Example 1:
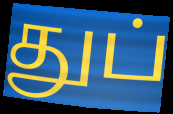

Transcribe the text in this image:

துப்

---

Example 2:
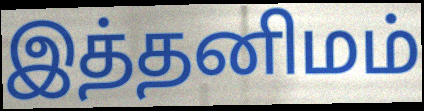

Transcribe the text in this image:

இத்தனிமம்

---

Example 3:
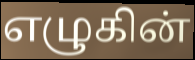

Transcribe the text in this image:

எழுகின்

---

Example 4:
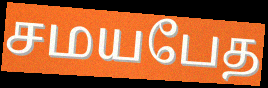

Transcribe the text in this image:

சமயபேத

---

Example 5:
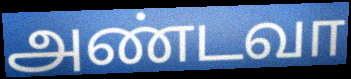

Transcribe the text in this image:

அண்டவா